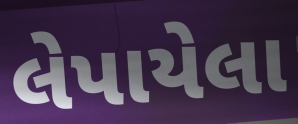
લેપાયેલા